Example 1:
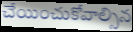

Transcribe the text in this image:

చేయించుకోవాల్సిన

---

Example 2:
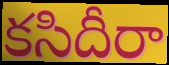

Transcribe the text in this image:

కసిదీరా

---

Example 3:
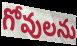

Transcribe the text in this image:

గోవులను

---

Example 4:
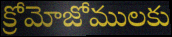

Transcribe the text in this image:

క్రోమోజోములకు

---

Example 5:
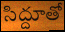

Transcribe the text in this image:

సిద్దూతో